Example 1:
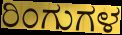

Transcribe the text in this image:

ರಿಂಗುಗಳ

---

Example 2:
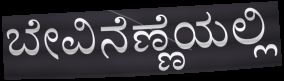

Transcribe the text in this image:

ಬೇವಿನೆಣ್ಣೆಯಲ್ಲಿ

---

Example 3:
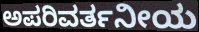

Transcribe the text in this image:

ಅಪರಿವರ್ತನೀಯ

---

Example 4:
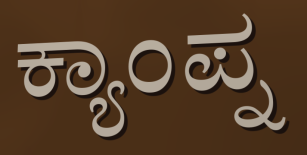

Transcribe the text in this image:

ಕ್ಯಾಂಪ್ನ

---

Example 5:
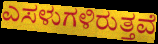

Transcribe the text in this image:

ಎಸಳುಗಳಿರುತ್ತವೆ